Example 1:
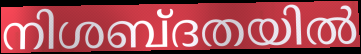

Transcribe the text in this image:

നിശബ്ദതയിൽ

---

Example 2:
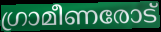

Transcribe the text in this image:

ഗ്രാമീണരോട്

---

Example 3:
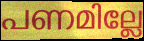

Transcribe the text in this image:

പണമില്ലേ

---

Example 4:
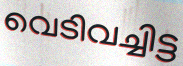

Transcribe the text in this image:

വെടിവച്ചിട്ട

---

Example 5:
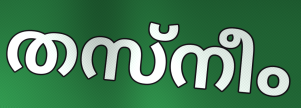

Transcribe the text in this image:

തസ്നീം